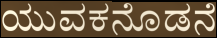
ಯುವಕನೊಡನೆ